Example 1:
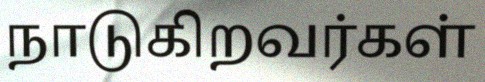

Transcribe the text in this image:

நாடுகிறவர்கள்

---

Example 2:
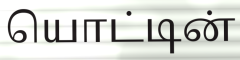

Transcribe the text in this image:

யொட்டின்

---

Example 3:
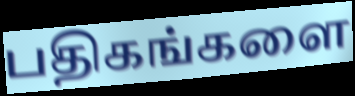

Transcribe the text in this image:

பதிகங்களை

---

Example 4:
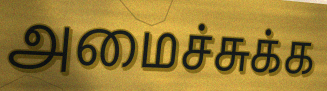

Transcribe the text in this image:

அமைச்சுக்க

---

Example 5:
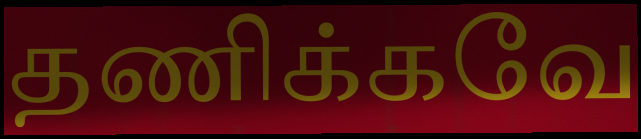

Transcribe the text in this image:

தணிக்கவே